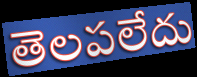
తెలపలేదు